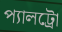
প্যালট্রো